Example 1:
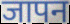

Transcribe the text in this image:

जापन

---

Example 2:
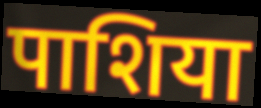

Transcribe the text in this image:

पाशिया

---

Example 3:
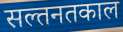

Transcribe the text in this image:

सल्तनतकाल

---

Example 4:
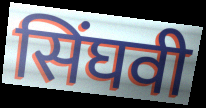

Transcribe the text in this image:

सिंघवी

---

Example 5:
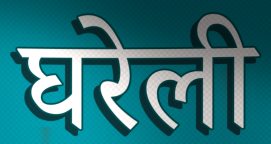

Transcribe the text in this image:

घरेली